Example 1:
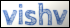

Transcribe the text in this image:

vishv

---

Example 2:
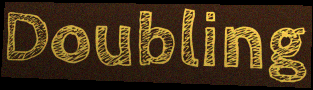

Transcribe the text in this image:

Doubling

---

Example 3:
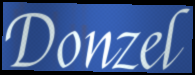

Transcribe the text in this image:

Donzel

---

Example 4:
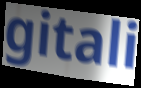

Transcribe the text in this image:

gitali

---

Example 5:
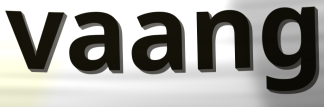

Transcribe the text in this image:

vaang